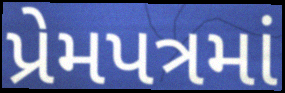
પ્રેમપત્રમાં